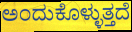
ಅಂದುಕೊಳ್ಳುತ್ತದೆ